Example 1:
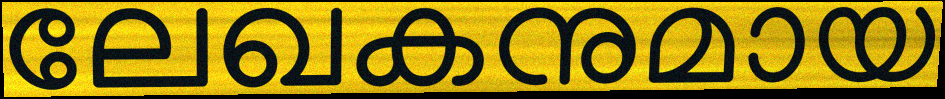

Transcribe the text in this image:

ലേഖകനുമായ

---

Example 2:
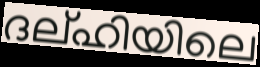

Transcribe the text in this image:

ദല്ഹിയിലെ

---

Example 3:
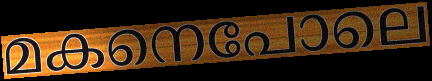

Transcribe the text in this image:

മകനെപോലെ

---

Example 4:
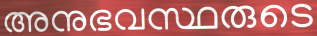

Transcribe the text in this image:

അനുഭവസ്ഥരുടെ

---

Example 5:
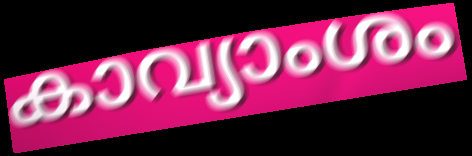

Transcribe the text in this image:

കാവ്യാംശം